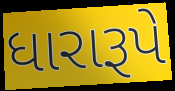
ધારારૂપે